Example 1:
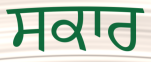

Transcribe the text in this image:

ਸਕਾਰ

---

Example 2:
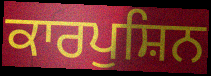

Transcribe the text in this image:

ਕਾਰਪੁਸ਼ਿਨ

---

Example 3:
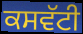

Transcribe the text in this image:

ਕਸਵੱਟੀ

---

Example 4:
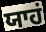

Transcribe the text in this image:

ਯਾਹਂ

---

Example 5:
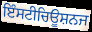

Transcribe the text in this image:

ਇੰਸਟੀਚਿਊਸ਼ਨਜ